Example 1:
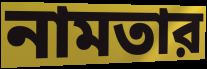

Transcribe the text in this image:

নামতার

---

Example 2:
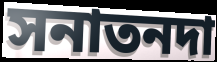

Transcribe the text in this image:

সনাতনদা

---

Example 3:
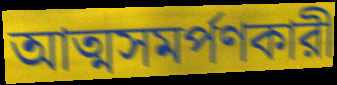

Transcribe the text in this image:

আত্মসমর্পণকারী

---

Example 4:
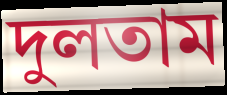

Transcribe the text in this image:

দুলতাম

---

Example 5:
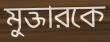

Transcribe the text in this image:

মুক্তারকে